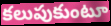
కలుపుకుంటూ